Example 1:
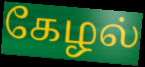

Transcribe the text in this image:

கேழல்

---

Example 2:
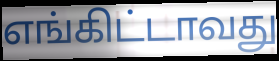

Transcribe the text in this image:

எங்கிட்டாவது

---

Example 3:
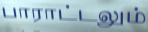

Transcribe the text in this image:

பாராட்டலும்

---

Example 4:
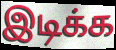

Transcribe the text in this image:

இடிக்க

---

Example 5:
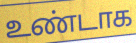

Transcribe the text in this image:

உண்டாக